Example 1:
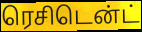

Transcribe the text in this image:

ரெசிடென்ட்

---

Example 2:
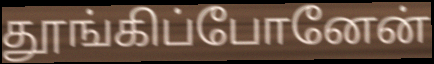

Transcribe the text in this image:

தூங்கிப்போனேன்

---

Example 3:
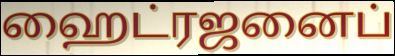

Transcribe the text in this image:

ஹைட்ரஜனைப்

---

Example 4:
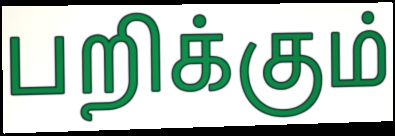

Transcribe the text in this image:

பறிக்கும்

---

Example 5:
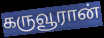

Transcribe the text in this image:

கருவூரான்